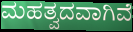
ಮಹತ್ವದವಾಗಿವೆ